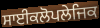
ਸਾਈਕਲੋਪਲੇਜਿਕ